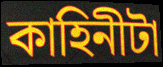
কাহিনীটা